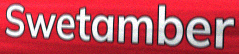
Swetamber